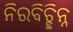
ନିରବିଚ୍ଛିନ୍ନ